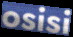
osisi